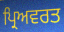
ਪ੍ਰਿਅਵਰਤ